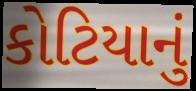
કોટિયાનું